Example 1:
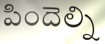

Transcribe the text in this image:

పిందెల్ని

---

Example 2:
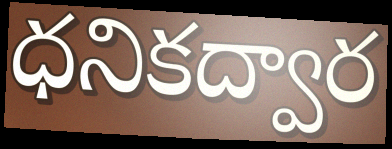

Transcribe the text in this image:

ధనికద్వార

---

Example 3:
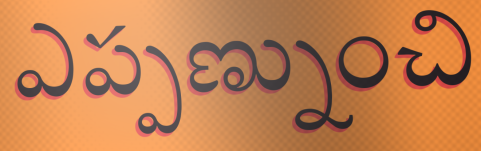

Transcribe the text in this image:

ఎప్పణ్నుంచి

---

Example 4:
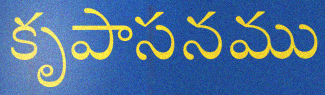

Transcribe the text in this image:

కృపాసనము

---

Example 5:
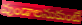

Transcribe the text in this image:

వుండాలనుకుంటే